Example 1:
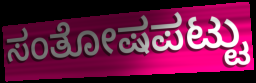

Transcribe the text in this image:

ಸಂತೋಷಪಟ್ಟು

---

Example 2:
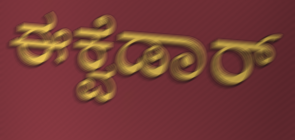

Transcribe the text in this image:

ಈಕ್ವೆಡಾರ್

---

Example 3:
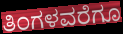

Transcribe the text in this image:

ತಿಂಗಳವರೆಗೂ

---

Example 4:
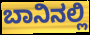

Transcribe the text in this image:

ಬಾನಿನಲ್ಲಿ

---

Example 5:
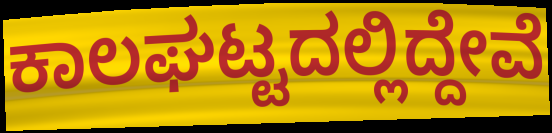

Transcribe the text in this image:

ಕಾಲಘಟ್ಟದಲ್ಲಿದ್ದೇವೆ